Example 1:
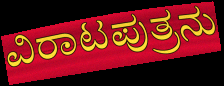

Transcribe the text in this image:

ವಿರಾಟಪುತ್ರನು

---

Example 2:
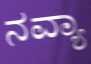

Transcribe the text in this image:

ನವ್ಯಾ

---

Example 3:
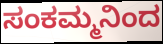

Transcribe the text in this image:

ಸಂಕಮ್ಮನಿಂದ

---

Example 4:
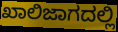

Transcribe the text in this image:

ಖಾಲಿಜಾಗದಲ್ಲಿ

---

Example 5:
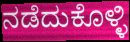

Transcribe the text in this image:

ನಡೆದುಕೊಳ್ಳಿ